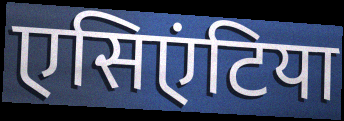
एसिएंटिया